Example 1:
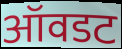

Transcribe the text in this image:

ऑवडट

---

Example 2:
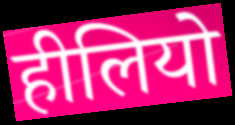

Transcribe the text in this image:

हीलियो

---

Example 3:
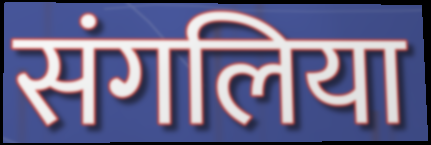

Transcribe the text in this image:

संगलिया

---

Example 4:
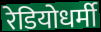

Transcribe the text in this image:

रेडियोधर्मी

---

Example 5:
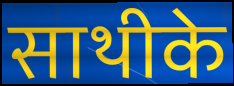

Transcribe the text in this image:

साथीके